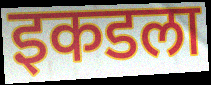
इकडला